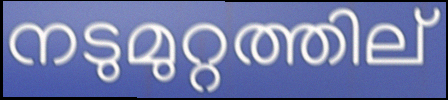
നടുമുറ്റത്തില്